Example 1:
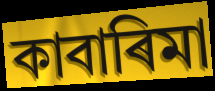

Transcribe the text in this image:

কাবাৰিমা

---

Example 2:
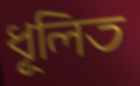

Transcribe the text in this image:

ধূলিত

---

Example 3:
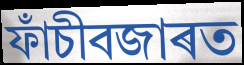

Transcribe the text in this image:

ফাঁচীবজাৰত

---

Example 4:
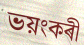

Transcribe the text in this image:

ভয়ংকৰী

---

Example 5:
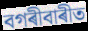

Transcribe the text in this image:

বগৰীবাৰীত